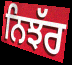
ਨਿਝੱਰ